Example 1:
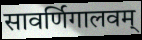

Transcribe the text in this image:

सावर्णिगालवम्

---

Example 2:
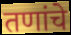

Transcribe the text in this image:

तणांचे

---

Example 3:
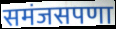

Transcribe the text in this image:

समंजसपणा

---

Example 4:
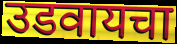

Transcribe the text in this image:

उडवायचा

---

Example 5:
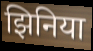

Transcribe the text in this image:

झिनिया